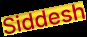
Siddesh